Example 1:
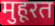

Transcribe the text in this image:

मुहूरत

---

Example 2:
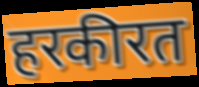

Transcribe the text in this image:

हरकीरत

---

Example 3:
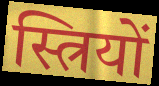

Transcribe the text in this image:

स्त्रियों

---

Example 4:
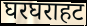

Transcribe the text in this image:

घरघराहट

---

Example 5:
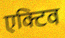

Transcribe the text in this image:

एक्टिव